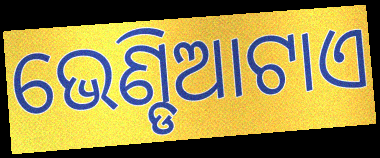
ଭେଣ୍ଡିଆଟାଏ